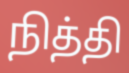
நித்தி